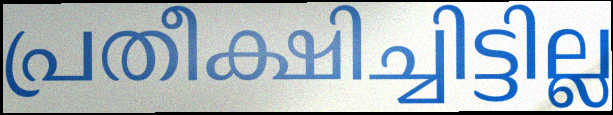
പ്രതീക്ഷിച്ചിട്ടില്ല